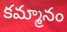
కమ్మానం